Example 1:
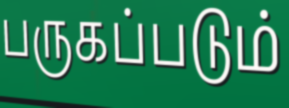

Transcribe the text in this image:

பருகப்படும்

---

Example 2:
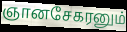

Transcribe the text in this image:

ஞானசேகரனும்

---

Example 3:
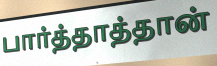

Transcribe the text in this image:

பார்த்தாத்தான்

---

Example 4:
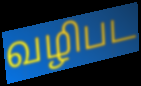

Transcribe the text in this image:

வழிபட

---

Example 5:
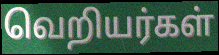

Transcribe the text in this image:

வெறியர்கள்